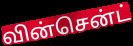
வின்சென்ட்